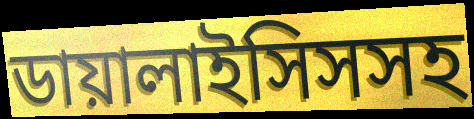
ডায়ালাইসিসসহ